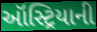
ઑસ્ટ્રિયાની